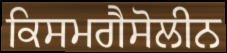
ਕਿਸਮਗੈਸੋਲੀਨ